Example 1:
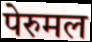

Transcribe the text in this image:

पेरुमल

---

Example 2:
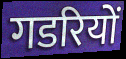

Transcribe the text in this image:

गडरियों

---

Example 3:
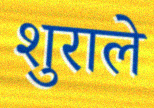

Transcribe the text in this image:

शुराले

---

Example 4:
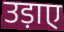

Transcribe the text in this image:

उड़ाए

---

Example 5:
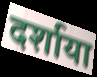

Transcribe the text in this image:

दर्शाया